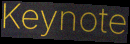
Keynote